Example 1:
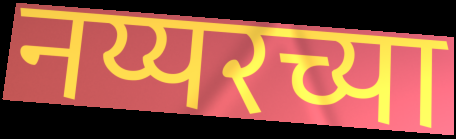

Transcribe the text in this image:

नय्यरच्या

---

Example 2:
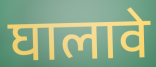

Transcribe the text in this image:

घालावे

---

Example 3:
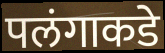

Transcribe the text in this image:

पलंगाकडे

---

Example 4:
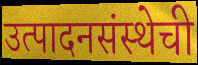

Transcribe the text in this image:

उत्पादनसंस्थेची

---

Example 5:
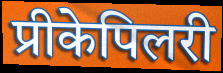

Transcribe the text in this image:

प्रीकेपिलरी